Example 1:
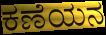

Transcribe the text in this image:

ಕಣೆಯನ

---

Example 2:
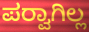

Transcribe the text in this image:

ಪರ‍್ವಾಗಿಲ್ಲ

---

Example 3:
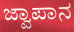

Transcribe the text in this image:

ಜ್ವಾಪಾನ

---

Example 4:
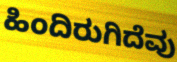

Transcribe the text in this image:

ಹಿಂದಿರುಗಿದೆವು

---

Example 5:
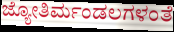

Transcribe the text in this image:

ಜ್ಯೋತಿರ್ಮಂಡಲಗಳಂತೆ